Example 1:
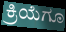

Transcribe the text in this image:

ಕ್ರಿಯೆಗೂ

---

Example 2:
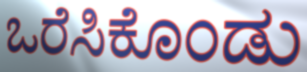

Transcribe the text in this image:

ಒರೆಸಿಕೊಂಡು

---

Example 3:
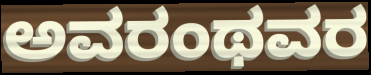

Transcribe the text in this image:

ಅವರಂಥವರ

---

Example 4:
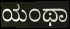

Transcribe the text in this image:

ಯಂಥಾ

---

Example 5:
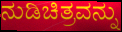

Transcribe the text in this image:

ನುಡಿಚಿತ್ರವನ್ನು